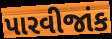
પારવીજાંક